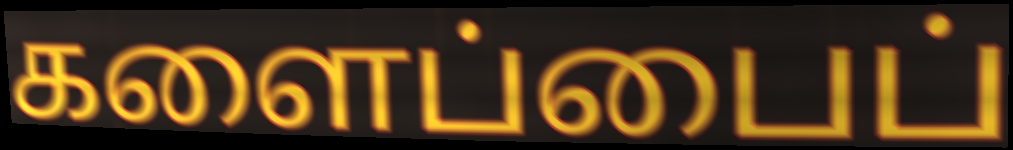
களைப்பைப்